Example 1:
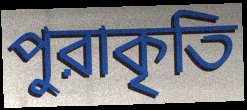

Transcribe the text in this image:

পুরাকৃতি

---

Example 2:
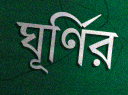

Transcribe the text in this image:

ঘূর্ণির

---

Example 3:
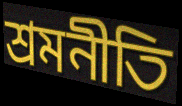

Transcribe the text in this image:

শ্রমনীতি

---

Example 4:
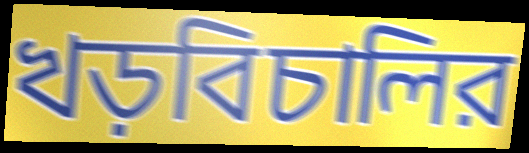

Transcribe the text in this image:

খড়বিচালির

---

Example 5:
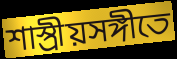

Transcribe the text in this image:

শাস্ত্রীয়সঙ্গীতে